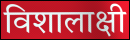
विशालाक्षी